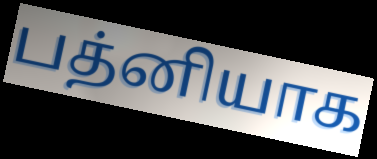
பத்னியாக